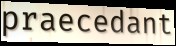
praecedant